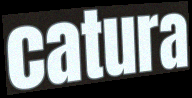
catura